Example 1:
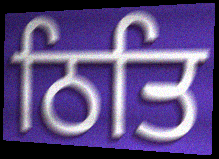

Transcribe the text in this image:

ਠਿਤਿ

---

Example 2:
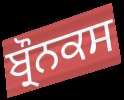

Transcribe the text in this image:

ਬ੍ਰੌਨਕਸ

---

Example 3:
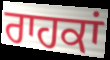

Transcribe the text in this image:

ਰਾਹਕਾਂ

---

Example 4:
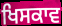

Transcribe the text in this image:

ਖਿਸਕਾਵ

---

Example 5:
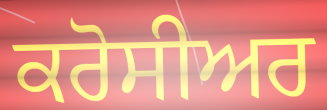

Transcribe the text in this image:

ਕਰੋਸੀਅਰ